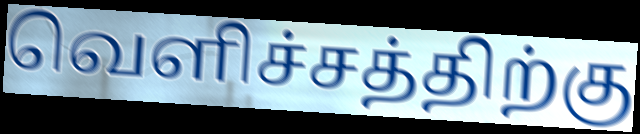
வெளிச்சத்திற்கு